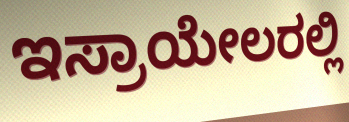
ಇಸ್ರಾಯೇಲರಲ್ಲಿ